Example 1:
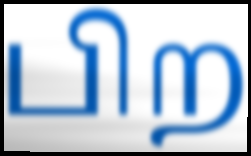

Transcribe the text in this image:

பிற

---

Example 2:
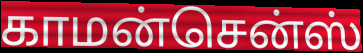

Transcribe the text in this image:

காமன்சென்ஸ்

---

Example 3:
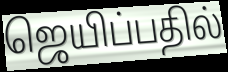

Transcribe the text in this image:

ஜெயிப்பதில்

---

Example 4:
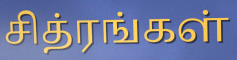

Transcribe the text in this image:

சித்ரங்கள்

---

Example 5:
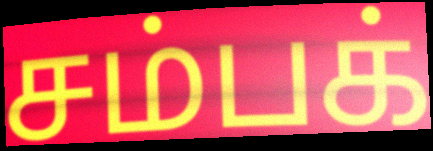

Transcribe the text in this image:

சம்பக்